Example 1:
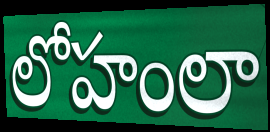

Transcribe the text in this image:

లోహంలా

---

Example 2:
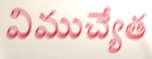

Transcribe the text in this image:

విముచ్యేత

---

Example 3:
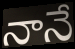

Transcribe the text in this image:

నానే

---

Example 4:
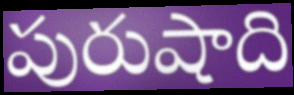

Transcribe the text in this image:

పురుషాది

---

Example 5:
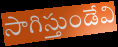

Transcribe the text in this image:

సాగిస్తుండేవి